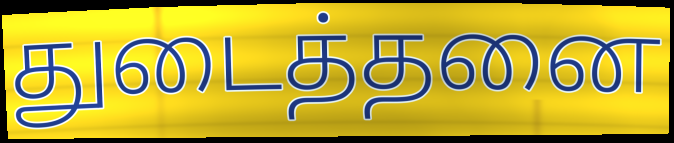
துடைத்தனை